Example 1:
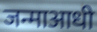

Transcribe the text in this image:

जन्माआधी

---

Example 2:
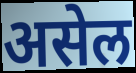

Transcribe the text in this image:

असेल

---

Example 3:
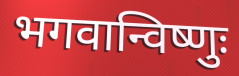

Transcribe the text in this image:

भगवान्विष्णुः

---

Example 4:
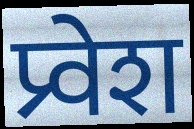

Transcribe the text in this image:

प्र्वेश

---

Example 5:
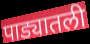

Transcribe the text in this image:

पाड्यातली